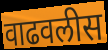
वाढवलीस